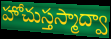
హోచుస్తస్మాద్వా